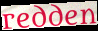
redden